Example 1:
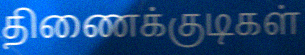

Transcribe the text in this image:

திணைக்குடிகள்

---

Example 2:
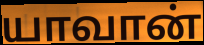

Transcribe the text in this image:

யாவான்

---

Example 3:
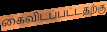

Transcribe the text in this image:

கைவிடப்பட்டதற்கு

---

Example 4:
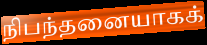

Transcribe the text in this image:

நிபந்தனையாகக்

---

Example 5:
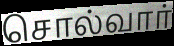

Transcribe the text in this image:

சொல்வார்